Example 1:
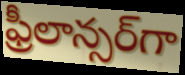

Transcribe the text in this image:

ఫ్రీలాన్సర్‌గా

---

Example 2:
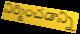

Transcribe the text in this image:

నిర్మించడాన్ని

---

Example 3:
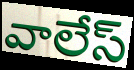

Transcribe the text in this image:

వాలేస్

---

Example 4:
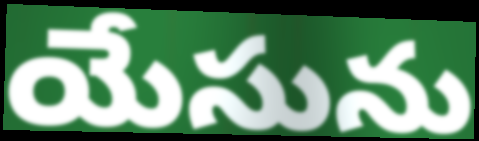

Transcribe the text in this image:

యేసును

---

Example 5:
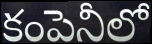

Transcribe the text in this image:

కంపెనీలో